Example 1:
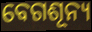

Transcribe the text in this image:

ବେଗଶୂନ୍ୟ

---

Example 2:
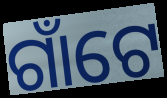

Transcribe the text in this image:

ଗାଁଟେ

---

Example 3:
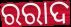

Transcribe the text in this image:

ରରାଦ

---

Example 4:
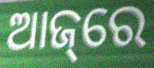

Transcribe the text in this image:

ଆଜ୍‌ରେ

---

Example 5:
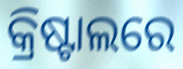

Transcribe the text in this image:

କ୍ରିଷ୍ଟାଲରେ